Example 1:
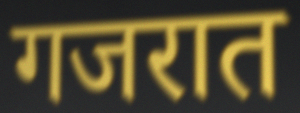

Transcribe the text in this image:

गजरात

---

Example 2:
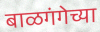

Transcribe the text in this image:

बाळगंगेच्या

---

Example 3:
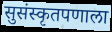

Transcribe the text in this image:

सुसंस्कृतपणाला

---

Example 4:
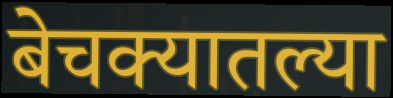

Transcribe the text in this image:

बेचक्यातल्या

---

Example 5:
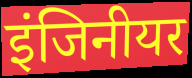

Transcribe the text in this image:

इंजिनीयर